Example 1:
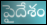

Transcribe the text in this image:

పైదేశం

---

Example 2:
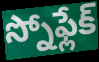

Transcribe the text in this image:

స్నోఫ్లేక్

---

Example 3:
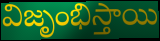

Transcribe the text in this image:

విజృంభిస్తాయి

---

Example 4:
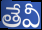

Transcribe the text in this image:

తేవీ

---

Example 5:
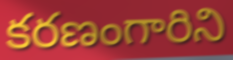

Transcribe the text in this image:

కరణంగారిని